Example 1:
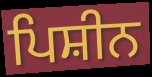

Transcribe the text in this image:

ਪਿਸ਼ੀਨ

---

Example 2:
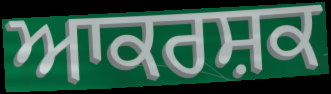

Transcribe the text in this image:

ਆਕਰਸ਼ਕ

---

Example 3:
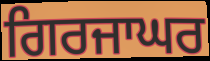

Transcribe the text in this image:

ਗਿਰਜਾਘਰ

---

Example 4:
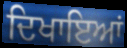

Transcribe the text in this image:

ਦਿਖਾਇਆਂ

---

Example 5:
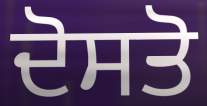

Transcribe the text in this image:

ਦੋਸਤੋ